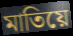
মাতিয়ে